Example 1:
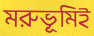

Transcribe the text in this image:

মরুভূমিই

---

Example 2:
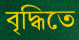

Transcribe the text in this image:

বৃদ্ধিতে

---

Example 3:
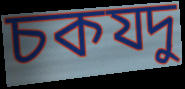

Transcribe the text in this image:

চকযদু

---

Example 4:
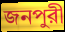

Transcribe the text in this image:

জনপুরী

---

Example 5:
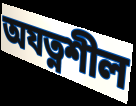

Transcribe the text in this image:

অযত্নশীল